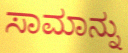
ಸಾಮಾನ್ನು